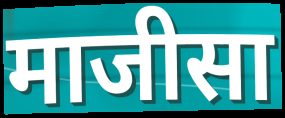
माजीसा